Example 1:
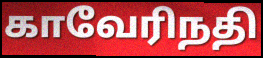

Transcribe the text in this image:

காவேரிநதி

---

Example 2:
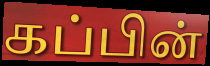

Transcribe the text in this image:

கப்பின்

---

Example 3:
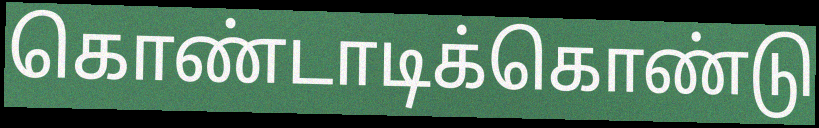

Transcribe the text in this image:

கொண்டாடிக்கொண்டு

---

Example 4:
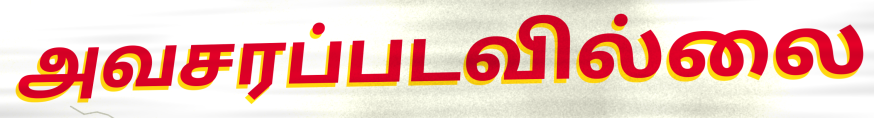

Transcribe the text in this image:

அவசரப்படவில்லை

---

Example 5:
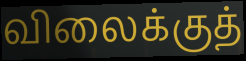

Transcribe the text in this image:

விலைக்குத்